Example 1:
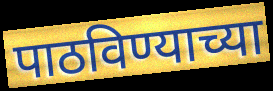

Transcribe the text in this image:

पाठविण्याच्या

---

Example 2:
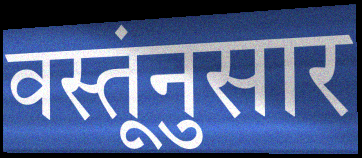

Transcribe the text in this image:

वस्तूंनुसार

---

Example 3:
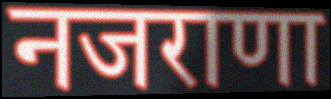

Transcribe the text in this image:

नजराणा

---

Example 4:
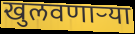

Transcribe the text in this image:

खुलवणाऱ्या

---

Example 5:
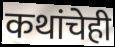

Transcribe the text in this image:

कथांचेही